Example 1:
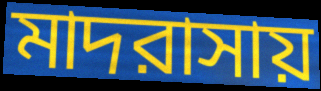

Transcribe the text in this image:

মাদরাসায়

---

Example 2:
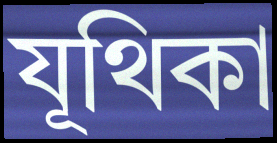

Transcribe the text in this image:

যূথিকা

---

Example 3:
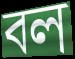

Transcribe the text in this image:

বল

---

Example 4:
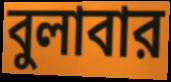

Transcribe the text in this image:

বুলাবার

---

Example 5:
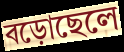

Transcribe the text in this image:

বড়োছেলে